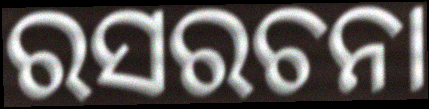
ରସରଚନା